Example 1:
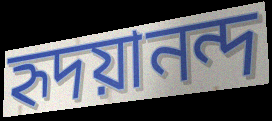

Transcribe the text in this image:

হৃদয়ানন্দ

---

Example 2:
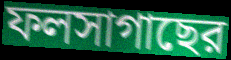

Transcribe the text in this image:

ফলসাগাছের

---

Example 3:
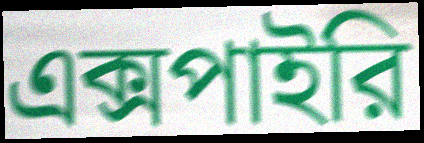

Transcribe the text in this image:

এক্সপাইরি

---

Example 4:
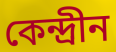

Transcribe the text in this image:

কেন্দ্রীন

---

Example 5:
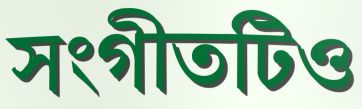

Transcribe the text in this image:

সংগীতটিও